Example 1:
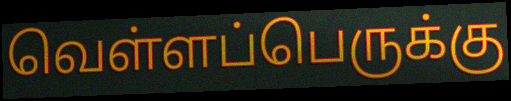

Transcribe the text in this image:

வெள்ளப்பெருக்கு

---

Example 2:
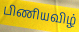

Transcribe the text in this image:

பிணியவிழ்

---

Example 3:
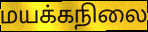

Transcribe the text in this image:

மயக்கநிலை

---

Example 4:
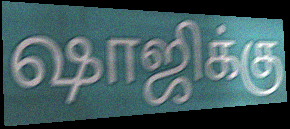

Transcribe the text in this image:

ஷாஜிக்கு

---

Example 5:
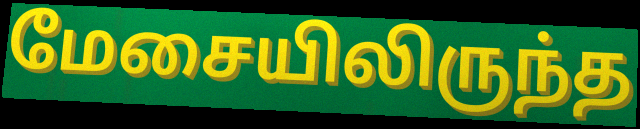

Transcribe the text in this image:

மேசையிலிருந்த